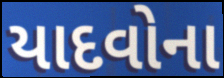
યાદવોના